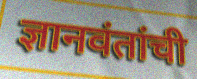
ज्ञानवंतांची